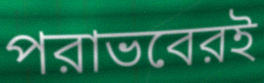
পরাভবেরই